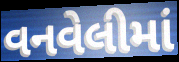
વનવેલીમાં